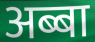
अब्बा